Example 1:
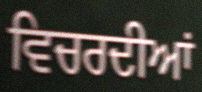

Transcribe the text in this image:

ਵਿਚਰਦੀਆਂ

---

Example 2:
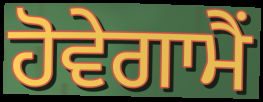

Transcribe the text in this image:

ਹੋਵੇਗਾਮੈਂ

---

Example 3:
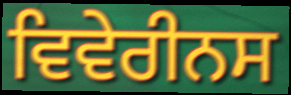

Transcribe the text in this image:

ਵਿਵੇਰੀਨਸ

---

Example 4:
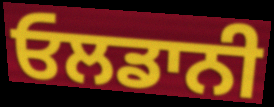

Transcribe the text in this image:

ਓਲਡਾਨੀ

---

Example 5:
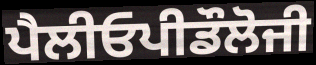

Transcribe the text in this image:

ਪੈਲੀਓਪੀਡੌਲੋਜੀ